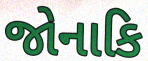
જોનાકિ